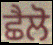
ਛੈਲੋ